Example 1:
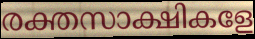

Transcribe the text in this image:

രക്തസാക്ഷികളേ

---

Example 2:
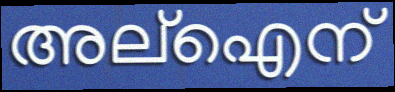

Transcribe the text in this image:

അല്ഐന്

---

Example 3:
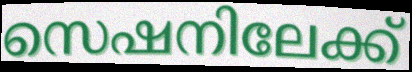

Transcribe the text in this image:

സെഷനിലേക്ക്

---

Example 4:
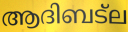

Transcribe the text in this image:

ആദിബട്ല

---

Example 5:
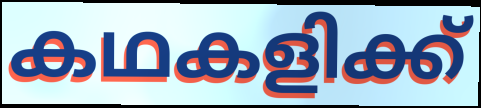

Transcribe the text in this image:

കഥകളിക്ക്